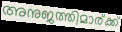
അനുജത്തിമാര്ക്ക്